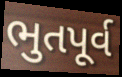
ભુતપૂર્વ